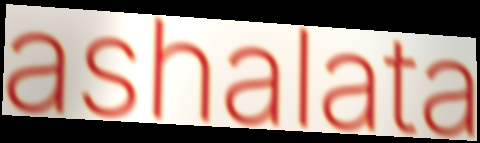
ashalata